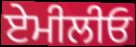
ਏਮੀਲੀਓ